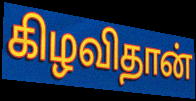
கிழவிதான்